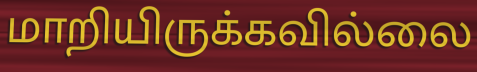
மாறியிருக்கவில்லை